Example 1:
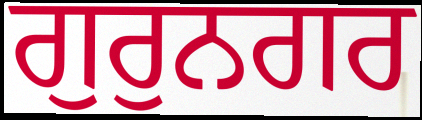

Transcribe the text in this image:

ਗੁਰੁਨਗਰ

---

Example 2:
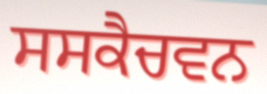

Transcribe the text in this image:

ਸਸਕੈਚਵਨ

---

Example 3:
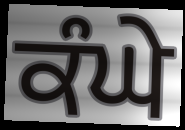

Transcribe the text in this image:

ਕੰਘੇ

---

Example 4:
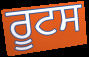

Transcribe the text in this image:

ਰੂਟਸ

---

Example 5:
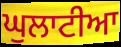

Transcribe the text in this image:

ਘੁਲਾਟੀਆ